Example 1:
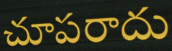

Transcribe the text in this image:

చూపరాదు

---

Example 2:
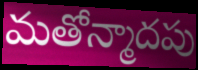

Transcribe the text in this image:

మతోన్మాదపు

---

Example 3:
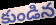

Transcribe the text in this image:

కుండిన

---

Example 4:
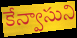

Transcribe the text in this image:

కేన్వాసుని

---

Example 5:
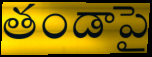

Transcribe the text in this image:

తండాపై